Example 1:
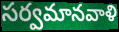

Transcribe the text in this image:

సర్వమానవాళి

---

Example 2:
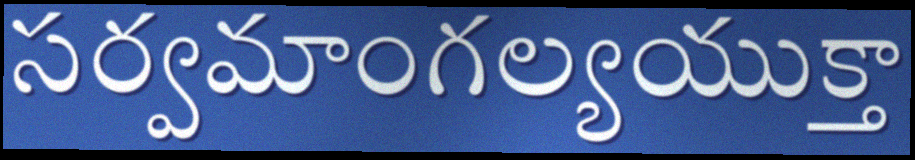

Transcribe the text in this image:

సర్వమాంగల్యయుక్తా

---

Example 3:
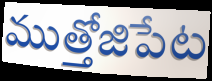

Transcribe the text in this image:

ముత్తోజిపేట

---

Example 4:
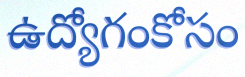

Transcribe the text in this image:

ఉద్యోగంకోసం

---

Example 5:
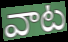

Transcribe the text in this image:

వాట